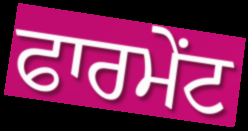
ਫਾਰਮੇਂਟ